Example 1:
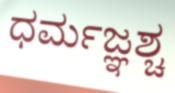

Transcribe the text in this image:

ಧರ್ಮಜ್ಞಶ್ಚ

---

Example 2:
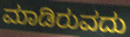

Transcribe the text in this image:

ಮಾಡಿರುವದು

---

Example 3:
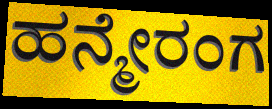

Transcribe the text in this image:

ಹನ್ಮೇರಂಗ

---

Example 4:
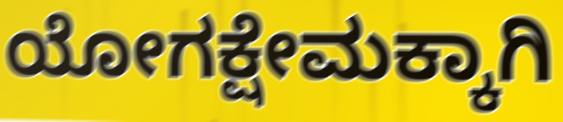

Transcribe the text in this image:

ಯೋಗಕ್ಷೇಮಕ್ಕಾಗಿ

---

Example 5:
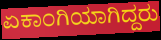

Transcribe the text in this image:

ಏಕಾಂಗಿಯಾಗಿದ್ದರು